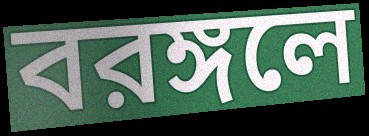
বরঙ্গলে